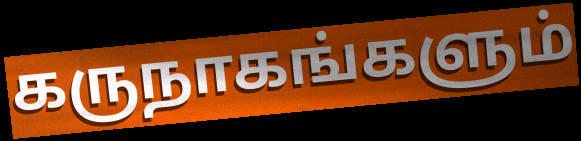
கருநாகங்களும்